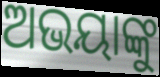
ଅଭୟାଙ୍କୁ